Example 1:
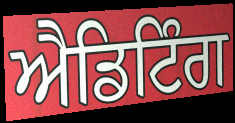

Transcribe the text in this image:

ਐਡਿਟਿੰਗ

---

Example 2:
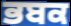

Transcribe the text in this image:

ਭਬਕ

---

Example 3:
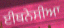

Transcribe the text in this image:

ਈਥਨੇਸੀਆ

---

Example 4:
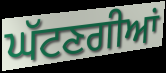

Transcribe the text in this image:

ਘੱਟਣਗੀਆਂ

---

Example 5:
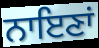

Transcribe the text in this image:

ਨਾਇਣਾਂ